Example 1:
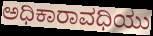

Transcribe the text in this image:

ಅಧಿಕಾರಾವಧಿಯು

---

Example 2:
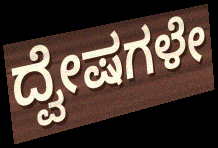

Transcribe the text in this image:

ದ್ವೇಷಗಳೇ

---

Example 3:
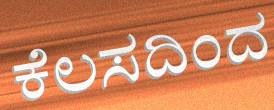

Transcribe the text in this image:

ಕೆಲಸದಿಂದ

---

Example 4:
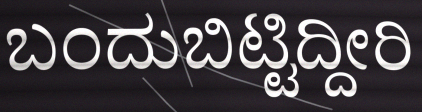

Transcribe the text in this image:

ಬಂದುಬಿಟ್ಟಿದ್ದೀರಿ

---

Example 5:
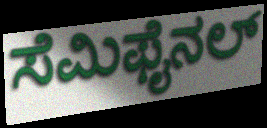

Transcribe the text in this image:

ಸೆಮಿಫೈನಲ್